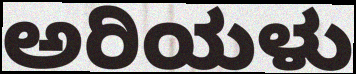
ಅರಿಯಳು